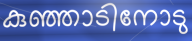
കുഞ്ഞാടിനോടു